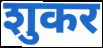
शुकर